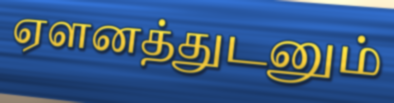
ஏளனத்துடனும்